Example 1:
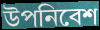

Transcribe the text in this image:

উপনিবেশ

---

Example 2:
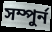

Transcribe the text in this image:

সম্পুৰ্ন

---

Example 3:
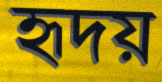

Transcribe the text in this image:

হৃদয়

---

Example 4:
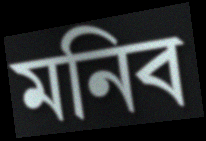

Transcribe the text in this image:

মনিব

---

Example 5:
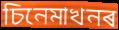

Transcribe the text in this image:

চিনেমাখনৰ